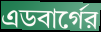
এডবার্গের